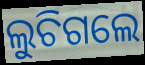
ଲୁଚିଗଲେ